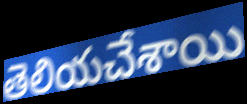
తెలియచేశాయి